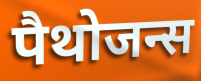
पैथोजन्स